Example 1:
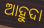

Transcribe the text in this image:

ଆହୁଦା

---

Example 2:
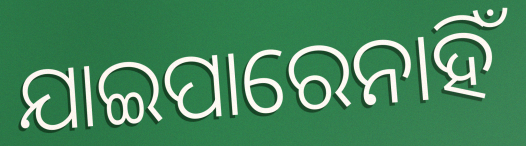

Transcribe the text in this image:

ଯାଇପାରେନାହିଁ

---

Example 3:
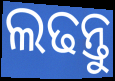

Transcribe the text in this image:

ଲଢନ୍ତୁ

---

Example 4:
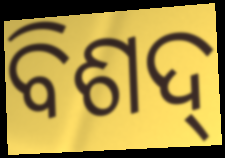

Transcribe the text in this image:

ବିଶଦ୍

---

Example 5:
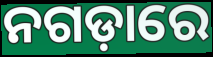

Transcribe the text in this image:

ନଗଡ଼ାରେ